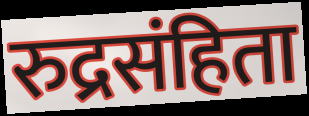
रुद्रसंहिता